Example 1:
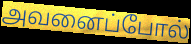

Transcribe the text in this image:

அவனைப்போல்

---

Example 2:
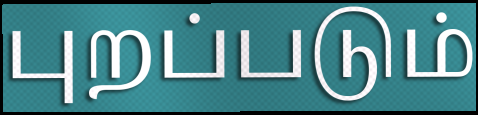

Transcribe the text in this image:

புறப்படும்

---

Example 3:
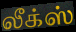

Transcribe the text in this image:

லீக்ஸ்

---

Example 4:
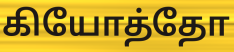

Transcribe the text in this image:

கியோத்தோ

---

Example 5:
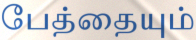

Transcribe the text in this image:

பேத்தையும்